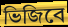
ভিজিবে